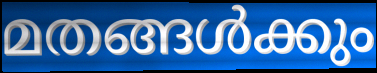
മതങ്ങൾക്കും